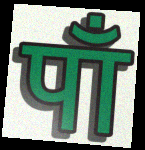
पाँ